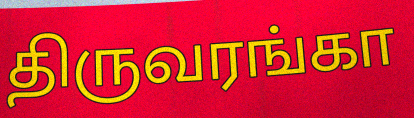
திருவரங்கா